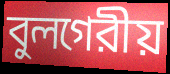
বুলগেরীয়